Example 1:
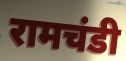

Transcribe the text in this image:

रामचंडी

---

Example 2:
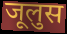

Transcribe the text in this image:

जूलुस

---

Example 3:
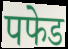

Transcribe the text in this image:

पफेड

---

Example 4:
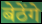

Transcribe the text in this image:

बेठेंगे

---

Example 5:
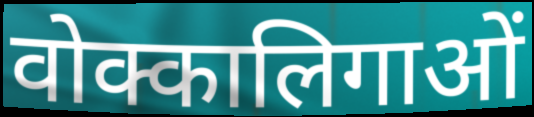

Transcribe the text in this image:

वोक्कालिगाओं